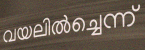
വയലിൽച്ചെന്ന്